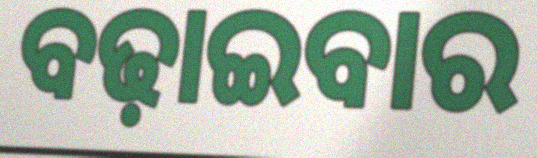
ବଢ଼ାଇବାର